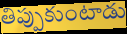
తిప్పుకుంటాడు